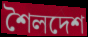
শৈলদেশ